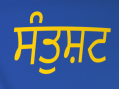
ਸੰਤੁਸ਼ਟ